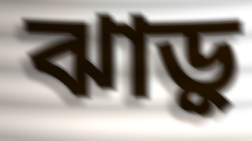
ঝাড়ু